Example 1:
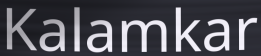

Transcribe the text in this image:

Kalamkar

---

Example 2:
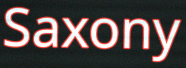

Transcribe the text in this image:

Saxony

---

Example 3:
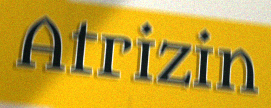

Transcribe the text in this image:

Atrizin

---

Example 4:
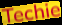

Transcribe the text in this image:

Techie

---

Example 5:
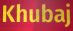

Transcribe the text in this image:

Khubaj